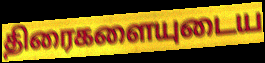
திரைகளையுடைய